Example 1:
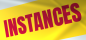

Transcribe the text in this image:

INSTANCES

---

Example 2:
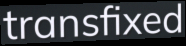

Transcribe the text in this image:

transfixed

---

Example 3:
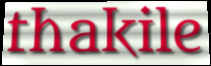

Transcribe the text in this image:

thakile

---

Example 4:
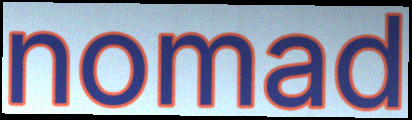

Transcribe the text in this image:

nomad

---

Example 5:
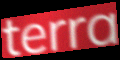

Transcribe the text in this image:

terra